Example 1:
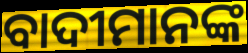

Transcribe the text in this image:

ବାଦୀମାନଙ୍କ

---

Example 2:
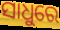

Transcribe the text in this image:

ସାଧୁରେ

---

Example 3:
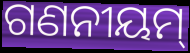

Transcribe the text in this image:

ଗଣନୀୟମ୍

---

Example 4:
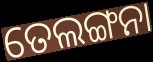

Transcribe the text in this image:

ତେଲଙ୍ଗନା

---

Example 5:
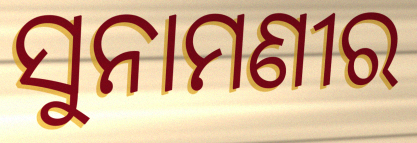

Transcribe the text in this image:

ସୁନାମଣୀର